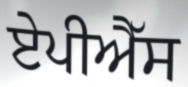
ਏਪੀਐੱਸ